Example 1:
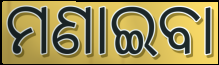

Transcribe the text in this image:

ମଣାଇବା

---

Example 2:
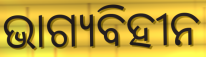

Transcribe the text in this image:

ଭାଗ୍ୟବିହୀନ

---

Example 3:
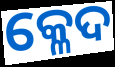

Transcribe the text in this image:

କ୍ଳେଦ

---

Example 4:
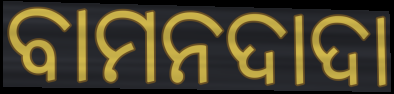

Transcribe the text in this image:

ବାମନଦାଦା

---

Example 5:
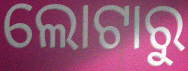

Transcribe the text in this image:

ଲୋଟାରୁ